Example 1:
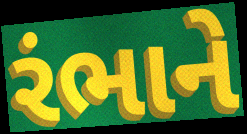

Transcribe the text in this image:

રંભાને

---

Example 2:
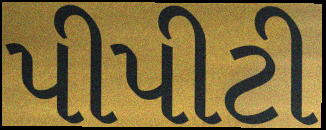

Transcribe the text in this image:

પીપીટી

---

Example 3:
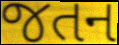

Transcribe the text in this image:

જતન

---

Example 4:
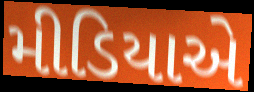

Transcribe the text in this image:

મીડિયાએ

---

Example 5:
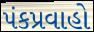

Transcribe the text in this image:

પંકપ્રવાહો